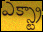
ఎక్స్ట్రా